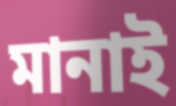
মানাই